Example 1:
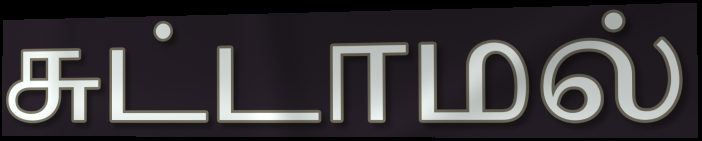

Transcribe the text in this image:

சுட்டாமல்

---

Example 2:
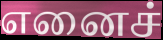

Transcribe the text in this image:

எனைச்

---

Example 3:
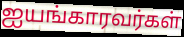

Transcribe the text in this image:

ஐயங்காரவர்கள்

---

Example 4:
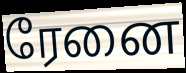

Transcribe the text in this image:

ரேனை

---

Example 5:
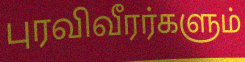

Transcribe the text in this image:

புரவிவீரர்களும்